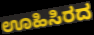
ಊಹಿಸಿರದ